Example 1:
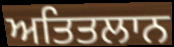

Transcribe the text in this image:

ਅਤਿਤਲਾਨ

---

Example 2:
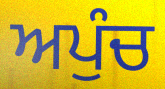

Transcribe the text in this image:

ਅਪੁੰਚ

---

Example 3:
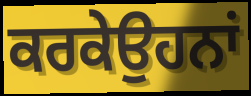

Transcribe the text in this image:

ਕਰਕੇਉਹਨਾਂ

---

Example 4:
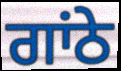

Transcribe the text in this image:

ਗਾਂਠੇ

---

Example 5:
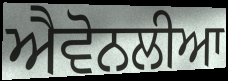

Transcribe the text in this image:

ਐਵੋਨਲੀਆ